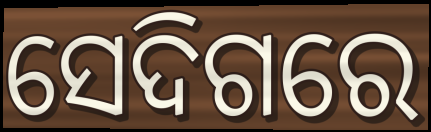
ସେଦିଗରେ